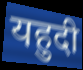
यहुदी